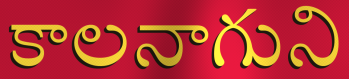
కాలనాగుని